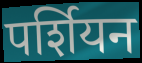
पर्शियन